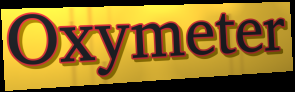
Oxymeter